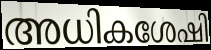
അധികശേഷി